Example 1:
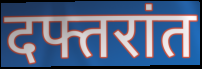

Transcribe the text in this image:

दफ्तरांत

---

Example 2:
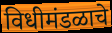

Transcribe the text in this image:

विधीमंडळाचे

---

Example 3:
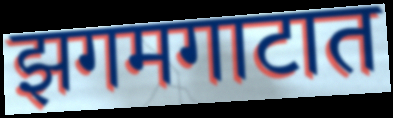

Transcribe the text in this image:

झगमगाटात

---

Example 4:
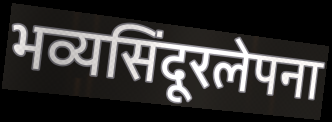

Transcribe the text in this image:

भव्यसिंदूरलेपना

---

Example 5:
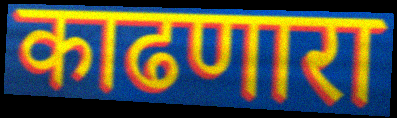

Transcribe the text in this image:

काढणारा